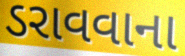
ડરાવવાના